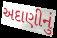
અદાણીનું